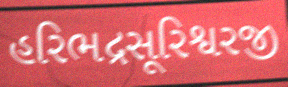
હરિભદ્રસૂરિશ્વરજી